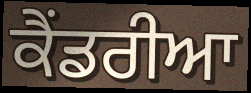
ਕੈਂਡਰੀਆ